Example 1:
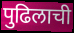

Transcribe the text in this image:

पुढिलाची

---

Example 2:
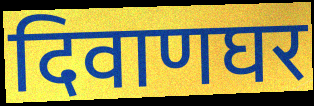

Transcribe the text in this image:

दिवाणघर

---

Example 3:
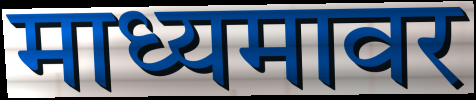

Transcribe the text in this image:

माध्यमावर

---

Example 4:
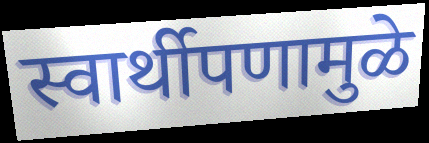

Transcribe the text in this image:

स्वार्थीपणामुळे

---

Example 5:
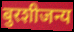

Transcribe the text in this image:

बुरशीजन्य